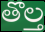
తొల్త